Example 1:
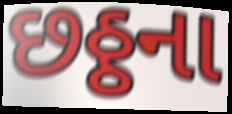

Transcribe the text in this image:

છઠ્ઠના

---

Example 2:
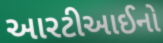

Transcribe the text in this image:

આરટીઆઈનો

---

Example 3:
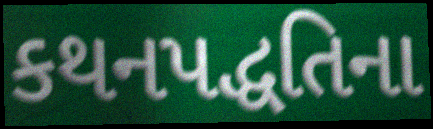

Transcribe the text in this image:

કથનપદ્ધતિના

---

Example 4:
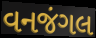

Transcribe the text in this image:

વનજંગલ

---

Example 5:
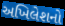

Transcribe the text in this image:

અખિલેશનો